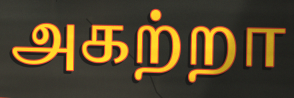
அகற்றா